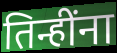
तिन्हींना